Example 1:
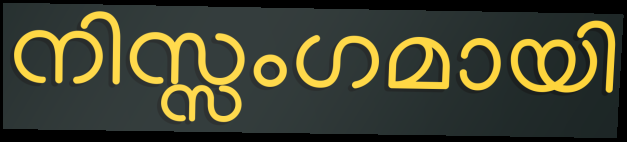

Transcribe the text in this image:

നിസ്സംഗമായി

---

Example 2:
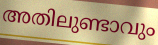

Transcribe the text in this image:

അതിലുണ്ടാവും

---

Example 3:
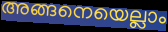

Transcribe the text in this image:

അങ്ങനെയെല്ലാം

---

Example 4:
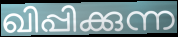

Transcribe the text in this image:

ഖിപ്പിക്കുന്ന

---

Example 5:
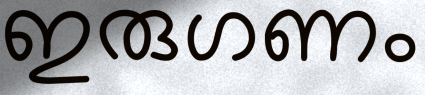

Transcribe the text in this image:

ഇരുഗണം